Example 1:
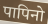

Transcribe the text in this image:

पापिनो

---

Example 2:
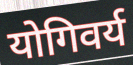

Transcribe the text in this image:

योगिवर्य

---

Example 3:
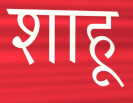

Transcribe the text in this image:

शाहू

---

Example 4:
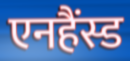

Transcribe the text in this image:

एनहैंस्ड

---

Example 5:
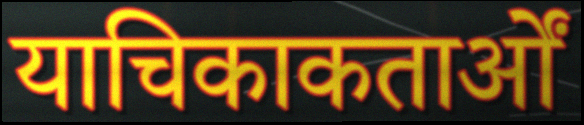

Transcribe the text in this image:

याचिकाकतार्ओं